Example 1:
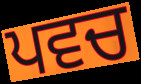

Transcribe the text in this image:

ਪਵਚ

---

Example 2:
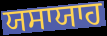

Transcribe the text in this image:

ਯਸਾਯਾਹ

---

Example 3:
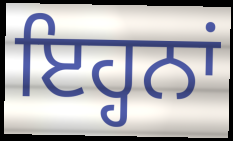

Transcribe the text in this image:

ਇਹ੍ਹਨਾਂ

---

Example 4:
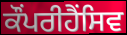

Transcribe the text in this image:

ਕੌਂਪਰੀਹੈਂਸਿਵ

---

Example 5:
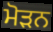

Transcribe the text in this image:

ਮੋੜਨ